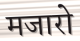
मजारो